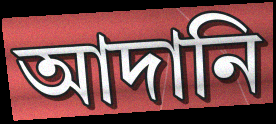
আদানি